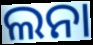
ଲନା